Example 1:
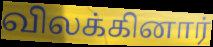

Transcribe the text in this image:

விலக்கினார்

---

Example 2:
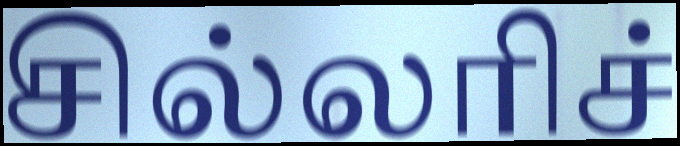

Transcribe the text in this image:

சில்லரிச்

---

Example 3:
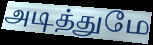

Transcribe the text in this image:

அடித்துமே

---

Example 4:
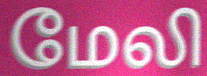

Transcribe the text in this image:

மேலி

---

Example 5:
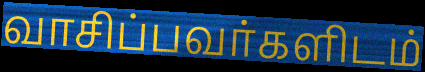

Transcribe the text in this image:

வாசிப்பவர்களிடம்